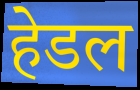
हेडल